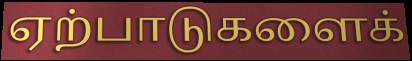
ஏற்பாடுகளைக்